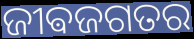
ଜୀଵଜଗତର